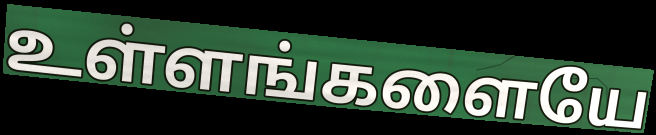
உள்ளங்களையே